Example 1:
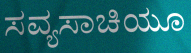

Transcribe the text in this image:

ಸವ್ಯಸಾಚಿಯೂ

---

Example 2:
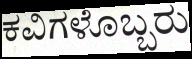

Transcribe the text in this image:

ಕವಿಗಳೊಬ್ಬರು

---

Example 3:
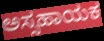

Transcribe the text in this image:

ಅಸ್ಸಹಾಯಕ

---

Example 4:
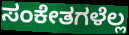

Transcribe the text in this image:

ಸಂಕೇತಗಳೆಲ್ಲ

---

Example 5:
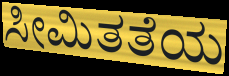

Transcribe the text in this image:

ಸೀಮಿತತೆಯ